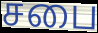
சபை